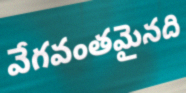
వేగవంతమైనది